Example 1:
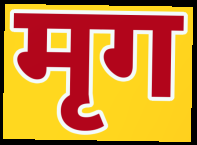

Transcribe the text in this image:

मृग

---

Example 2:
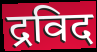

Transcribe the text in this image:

द्रविद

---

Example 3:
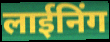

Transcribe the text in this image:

लाईनिंग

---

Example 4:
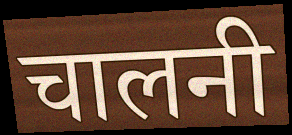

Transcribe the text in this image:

चालनी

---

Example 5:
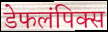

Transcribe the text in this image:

डेफलंपिक्स